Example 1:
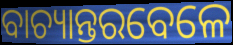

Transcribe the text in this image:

ବାଚ୍ୟାନ୍ତରବେଳେ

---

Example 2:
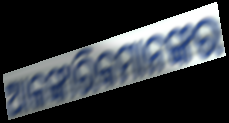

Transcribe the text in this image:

ଆଳଙ୍କାରିକମାନଙ୍କର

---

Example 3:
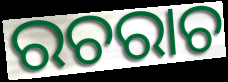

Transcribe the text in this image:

ରଚରାଚ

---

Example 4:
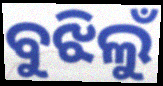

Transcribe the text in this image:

ବୁଝିଲୁଁ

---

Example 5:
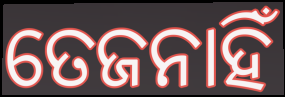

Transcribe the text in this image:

ତେଜନାହିଁ